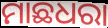
ମାଛଧରା